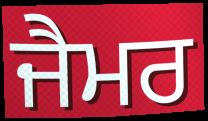
ਜੈਮਰ